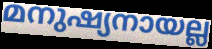
മനുഷ്യനായല്ല